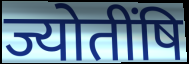
ज्योतींषि